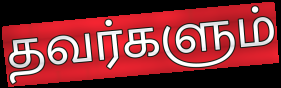
தவர்களும்